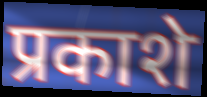
प्रकाशे